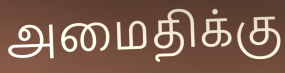
அமைதிக்கு